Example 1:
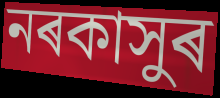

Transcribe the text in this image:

নৰকাসুৰ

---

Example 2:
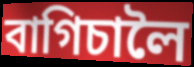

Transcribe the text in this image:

বাগিচালৈ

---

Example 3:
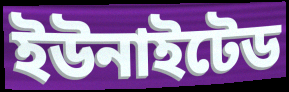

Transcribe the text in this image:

ইউনাইটেড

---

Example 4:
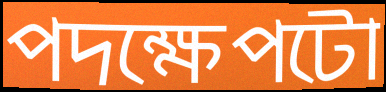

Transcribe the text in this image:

পদক্ষেপটো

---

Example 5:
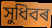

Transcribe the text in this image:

সুধিবৰ